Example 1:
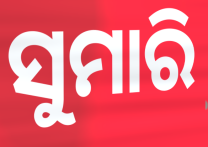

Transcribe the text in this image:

ସୁମାରି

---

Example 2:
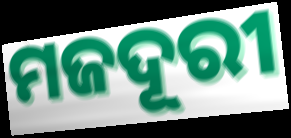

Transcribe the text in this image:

ମଜଦୂରୀ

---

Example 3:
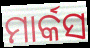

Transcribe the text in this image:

ମାର୍କସ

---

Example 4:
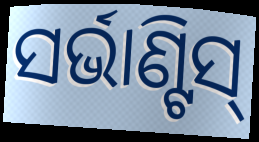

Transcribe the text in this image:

ସର୍ଭାଣ୍ଟିସ୍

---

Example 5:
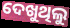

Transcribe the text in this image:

ଦେଖୁଥିଲୁ